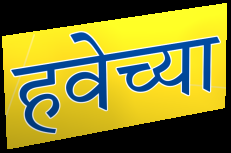
हवेच्या